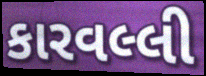
કારવલ્લી